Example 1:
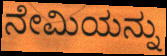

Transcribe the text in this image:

ನೇಮಿಯನ್ನು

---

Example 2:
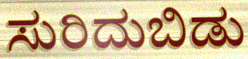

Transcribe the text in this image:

ಸುರಿದುಬಿಡು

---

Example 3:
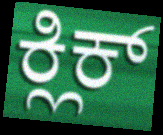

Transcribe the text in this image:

ಕ್ಲಿಕ್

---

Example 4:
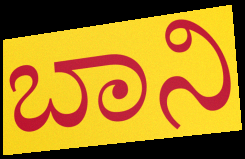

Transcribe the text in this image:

ಬಾನಿ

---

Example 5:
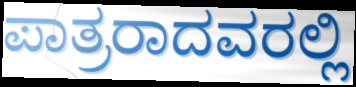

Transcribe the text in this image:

ಪಾತ್ರರಾದವರಲ್ಲಿ